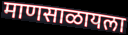
माणसाळायला